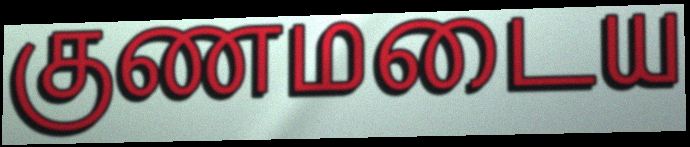
குணமடைய